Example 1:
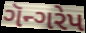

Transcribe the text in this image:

ગૅન્ગરેપ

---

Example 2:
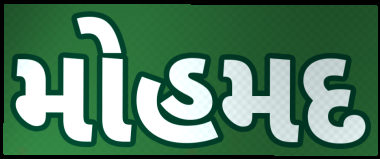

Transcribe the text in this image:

મોહમદ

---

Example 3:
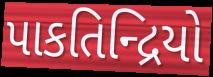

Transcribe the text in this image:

પાકતિન્દ્રિયો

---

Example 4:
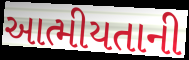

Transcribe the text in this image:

આત્મીયતાની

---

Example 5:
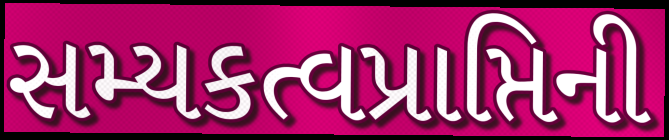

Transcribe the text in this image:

સમ્યકત્વપ્રાપ્તિની